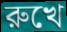
রুখে